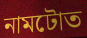
নামটোত